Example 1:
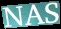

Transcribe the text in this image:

NAS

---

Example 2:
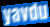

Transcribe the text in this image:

yavdu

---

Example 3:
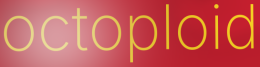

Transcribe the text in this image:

octoploid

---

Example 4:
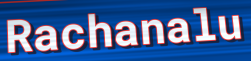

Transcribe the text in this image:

Rachanalu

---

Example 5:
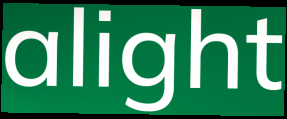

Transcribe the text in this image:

alight